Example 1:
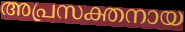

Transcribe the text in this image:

അപ്രസക്തനായ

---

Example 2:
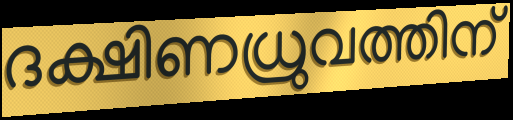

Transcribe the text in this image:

ദക്ഷിണധ്രുവത്തിന്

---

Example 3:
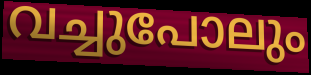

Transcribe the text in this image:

വച്ചുപോലും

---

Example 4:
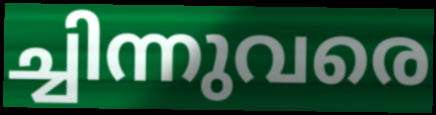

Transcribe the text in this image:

ച്ചിന്നുവരെ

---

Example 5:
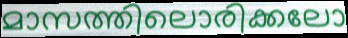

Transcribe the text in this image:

മാസത്തിലൊരിക്കലോ